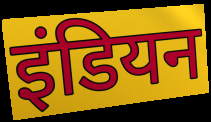
इंडियन